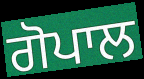
ਗੋਪਾਲ